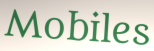
Mobiles